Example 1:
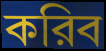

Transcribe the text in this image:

করিব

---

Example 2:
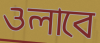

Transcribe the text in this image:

ওলাবে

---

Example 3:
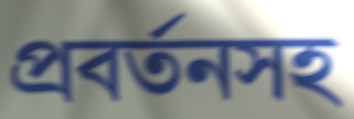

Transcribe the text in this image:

প্রবর্তনসহ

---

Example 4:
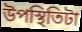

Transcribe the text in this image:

উপস্থিতিটা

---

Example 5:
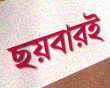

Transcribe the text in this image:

ছয়বারই